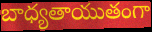
బాధ్యతాయుతంగా